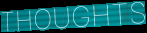
THOUGHTS